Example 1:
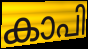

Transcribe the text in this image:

കാപി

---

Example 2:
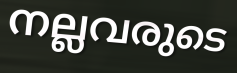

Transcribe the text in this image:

നല്ലവരുടെ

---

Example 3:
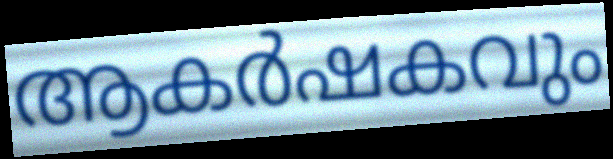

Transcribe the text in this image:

ആകർഷകവും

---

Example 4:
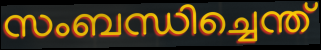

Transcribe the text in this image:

സംബന്ധിച്ചെന്ത്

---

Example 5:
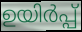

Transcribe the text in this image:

ഉയിർപ്പ്